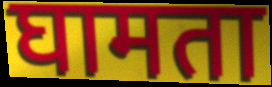
घामता